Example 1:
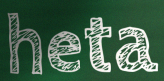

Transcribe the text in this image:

heta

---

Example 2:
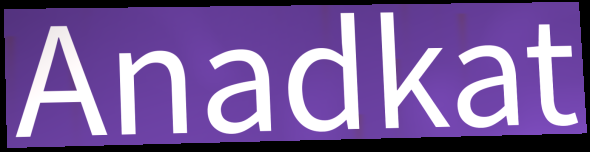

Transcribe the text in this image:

Anadkat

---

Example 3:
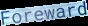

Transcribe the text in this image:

Foreward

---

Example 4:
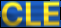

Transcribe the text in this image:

CLE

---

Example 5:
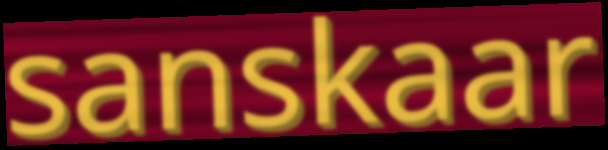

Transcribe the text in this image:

sanskaar